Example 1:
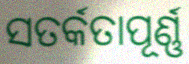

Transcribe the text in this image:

ସତର୍କତାପୂର୍ଣ୍ଣ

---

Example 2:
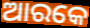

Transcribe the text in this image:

ଆରକେ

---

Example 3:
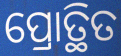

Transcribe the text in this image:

ପ୍ରୋତ୍ଥିତ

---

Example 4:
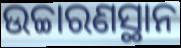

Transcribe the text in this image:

ଉଚ୍ଚାରଣସ୍ଥାନ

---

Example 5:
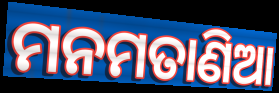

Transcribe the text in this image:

ମନମତାଣିଆ